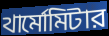
থার্মোমিটার